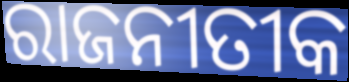
ରାଜନୀତୀକ